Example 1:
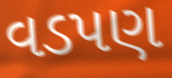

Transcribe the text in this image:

વડપણ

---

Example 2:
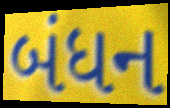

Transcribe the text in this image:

બંધન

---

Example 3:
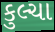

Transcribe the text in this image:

કુલ્ચા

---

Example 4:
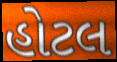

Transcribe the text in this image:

હોટલ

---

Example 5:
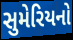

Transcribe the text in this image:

સુમેરિયનો